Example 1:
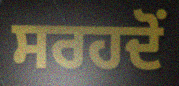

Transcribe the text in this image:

ਸਰਹਦੋਂ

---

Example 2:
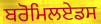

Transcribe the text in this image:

ਬਰੋਮਿਲਏਡਸ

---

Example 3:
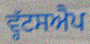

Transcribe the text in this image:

ਵ੍ਹੱਟਸਐਪ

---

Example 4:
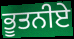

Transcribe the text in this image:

ਭੂਤਨੀਏ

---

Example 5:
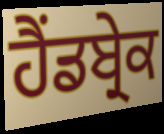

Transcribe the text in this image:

ਹੈਂਡਬ੍ਰੇਕ